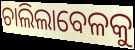
ଚାଲିଲାବେଳକୁ